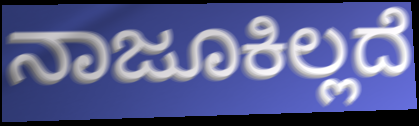
ನಾಜೂಕಿಲ್ಲದೆ